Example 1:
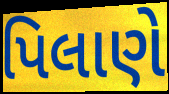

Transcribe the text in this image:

પિલાણે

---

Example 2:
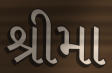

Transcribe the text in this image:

શ્રીમા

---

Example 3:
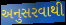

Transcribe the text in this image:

અનુસરવાથી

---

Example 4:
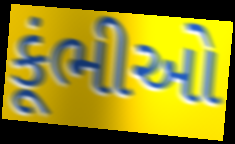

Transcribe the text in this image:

કૂંભીઓ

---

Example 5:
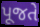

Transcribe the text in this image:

પૂજતે